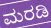
ಮರಡಿ